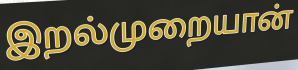
இறல்முறையான்